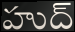
హుద్